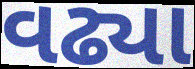
વઢ્યા